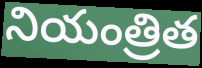
నియంత్రిత